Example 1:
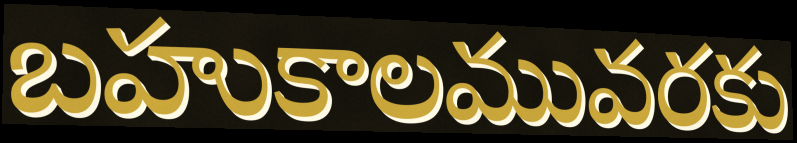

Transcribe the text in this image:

బహుకాలమువరకు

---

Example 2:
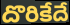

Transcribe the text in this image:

దొరికేదే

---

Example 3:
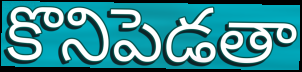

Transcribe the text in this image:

కొనిపెడతా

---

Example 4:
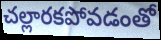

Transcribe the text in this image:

చల్లారకపోవడంతో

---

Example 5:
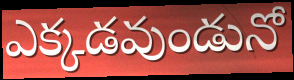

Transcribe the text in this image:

ఎక్కడవుండునో